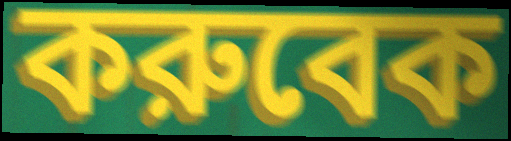
করুবেক